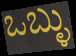
ಒಬ್ಳು